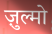
ज़ुल्मो